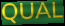
QUAL